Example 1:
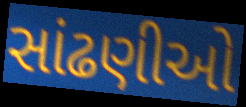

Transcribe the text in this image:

સાંઢણીઓ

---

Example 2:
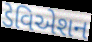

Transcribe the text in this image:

ડેવિએશન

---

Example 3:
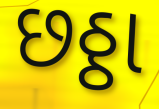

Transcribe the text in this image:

છઠ્ઠા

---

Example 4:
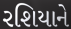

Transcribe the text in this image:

રશિયાને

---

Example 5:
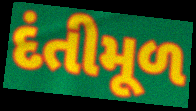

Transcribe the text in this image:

દંતીમૂળ